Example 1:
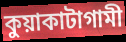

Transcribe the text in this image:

কুয়াকাটাগামী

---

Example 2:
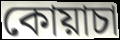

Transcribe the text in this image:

কোয়াচা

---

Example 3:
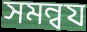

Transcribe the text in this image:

সমন্বয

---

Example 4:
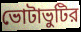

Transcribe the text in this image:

ভোটাভুটির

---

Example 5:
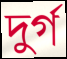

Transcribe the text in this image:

দুর্গ